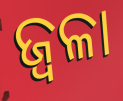
ଜ୍ୱଳା